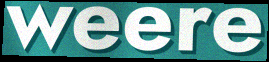
weere